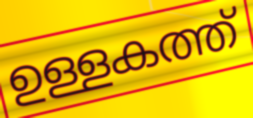
ഉള്ളകത്ത്